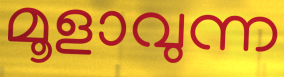
മൂളാവുന്ന